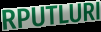
RPUTLURI